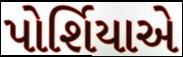
પોર્શિયાએ